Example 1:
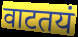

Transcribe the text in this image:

वाटतयं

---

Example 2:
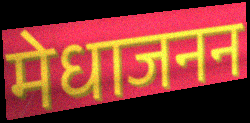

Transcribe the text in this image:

मेधाजनन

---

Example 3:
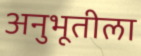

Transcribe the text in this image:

अनुभूतीला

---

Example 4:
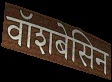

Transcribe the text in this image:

वॉशबेसिन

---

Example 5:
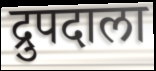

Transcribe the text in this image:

द्रुपदाला